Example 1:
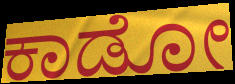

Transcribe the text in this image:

ಕಾಡೋ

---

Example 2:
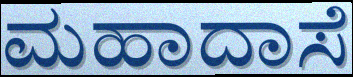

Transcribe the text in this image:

ಮಹಾದಾಸೆ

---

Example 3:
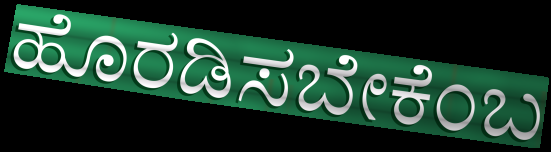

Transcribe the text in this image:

ಹೊರಡಿಸಬೇಕೆಂಬ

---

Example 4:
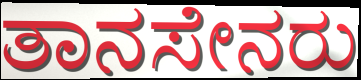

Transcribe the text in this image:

ತಾನಸೇನರು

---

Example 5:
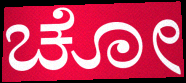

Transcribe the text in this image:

ಚೋ